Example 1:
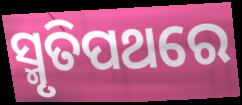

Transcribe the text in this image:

ସ୍ମୃତିପଥରେ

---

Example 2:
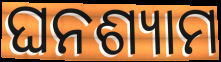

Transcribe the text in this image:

ଘନଶ୍ୟାମ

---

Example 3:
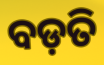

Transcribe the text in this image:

ବଡ଼ତି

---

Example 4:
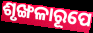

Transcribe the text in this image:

ଶୃଙ୍ଖଳାରୂପେ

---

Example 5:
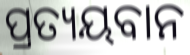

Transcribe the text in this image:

ପ୍ରତ୍ୟୟବାନ